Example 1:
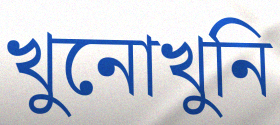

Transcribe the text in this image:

খুনোখুনি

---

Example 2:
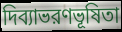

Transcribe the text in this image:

দিব্যাভরণভূষিতা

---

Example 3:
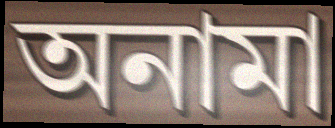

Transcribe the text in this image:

অনামা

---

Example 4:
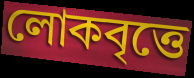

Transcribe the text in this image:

লোকবৃত্তে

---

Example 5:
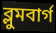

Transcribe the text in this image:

ব্লুমবার্গ